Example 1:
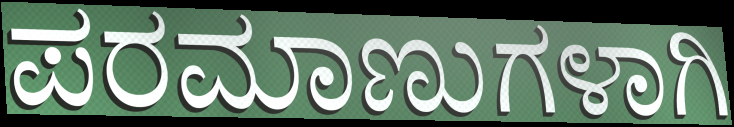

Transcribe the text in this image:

ಪರಮಾಣುಗಳಾಗಿ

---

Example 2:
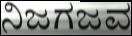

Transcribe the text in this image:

ನಿಜಗಜವ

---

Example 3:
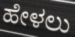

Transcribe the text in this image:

ಹೇಳಲು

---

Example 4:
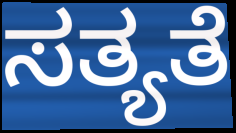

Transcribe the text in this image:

ಸತ್ಯತೆ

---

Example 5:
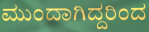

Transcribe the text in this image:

ಮುಂದಾಗಿದ್ದರಿಂದ